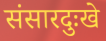
संसारदुःखे